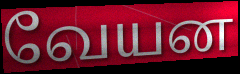
வேயன